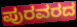
ಪುರವರದ